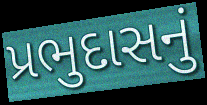
પ્રભુદાસનું